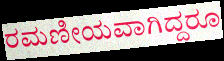
ರಮಣೀಯವಾಗಿದ್ದರೂ